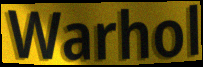
Warhol